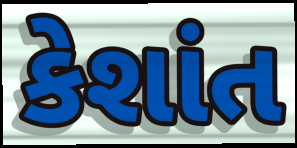
કેશાંત